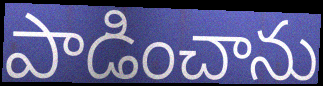
పాడించాను